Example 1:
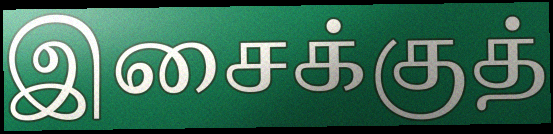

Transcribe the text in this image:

இசைக்குத்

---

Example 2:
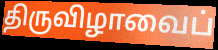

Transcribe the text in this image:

திருவிழாவைப்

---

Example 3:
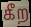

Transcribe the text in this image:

கீற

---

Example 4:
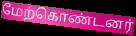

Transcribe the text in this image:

மேற்கொண்டனர்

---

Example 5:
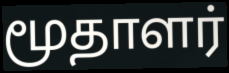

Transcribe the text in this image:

மூதாளர்